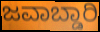
ಜವಾಬ್ಡಾರಿ